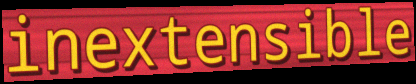
inextensible